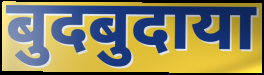
बुदबुदाया